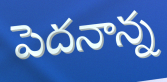
పెదనాన్న